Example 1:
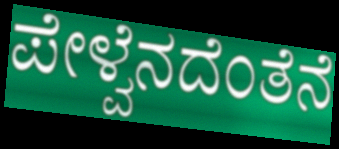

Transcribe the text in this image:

ಪೇಳ್ವೆನದೆಂತೆನೆ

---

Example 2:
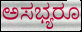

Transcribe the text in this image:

ಅಸಭ್ಯರೂ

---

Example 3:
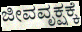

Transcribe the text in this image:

ಜೀವವೃಕ್ಷಕ್ಕೆ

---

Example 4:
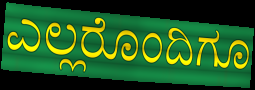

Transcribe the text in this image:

ಎಲ್ಲರೊಂದಿಗೂ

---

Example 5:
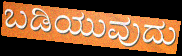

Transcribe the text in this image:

ಬಡಿಯುವುದು